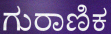
ಗುರಾಣಿಕ